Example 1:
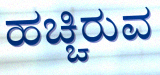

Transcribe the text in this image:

ಹಚ್ಚಿರುವ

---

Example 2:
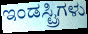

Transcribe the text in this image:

ಇಂಡಸ್ಟ್ರಿಗಳು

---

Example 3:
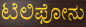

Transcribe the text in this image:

ಟೆಲಿಫೋನು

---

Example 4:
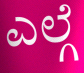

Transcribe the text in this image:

ಎಲ್ಗೆ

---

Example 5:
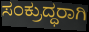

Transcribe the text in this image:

ಸಂಕ್ರುದ್ಧರಾಗಿ